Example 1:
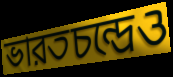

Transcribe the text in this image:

ভারতচন্দ্রেও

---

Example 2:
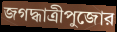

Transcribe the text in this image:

জগদ্ধাত্রীপুজোর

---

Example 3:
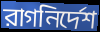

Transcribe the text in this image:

রাগনির্দেশ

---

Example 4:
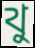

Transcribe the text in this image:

থু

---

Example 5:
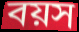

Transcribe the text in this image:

বয়স